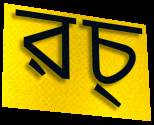
ৱচ্